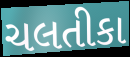
ચલતીકા